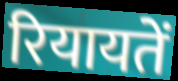
रियायतें